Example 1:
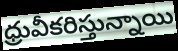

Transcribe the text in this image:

ధ్రువీకరిస్తున్నాయి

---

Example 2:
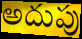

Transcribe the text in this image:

అదుపు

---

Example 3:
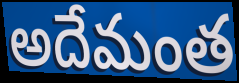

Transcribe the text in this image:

అదేమంత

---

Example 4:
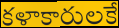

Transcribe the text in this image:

కళాకారులకే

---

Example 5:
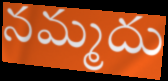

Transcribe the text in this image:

నమ్మదు